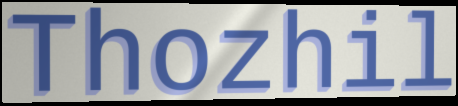
Thozhil